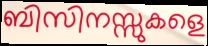
ബിസിനസ്സുകളെ